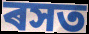
ৰসত